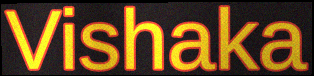
Vishaka